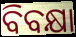
ବିବକ୍ଷା